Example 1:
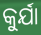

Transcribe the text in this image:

କୁର୍ଯା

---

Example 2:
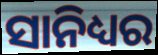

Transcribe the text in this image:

ସାନିଧ୍ୟର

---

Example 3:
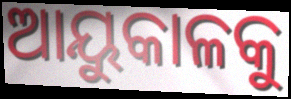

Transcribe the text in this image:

ଆୟୁକାଳକୁ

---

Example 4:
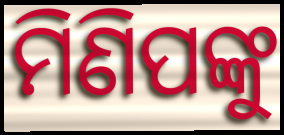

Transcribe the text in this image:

ମିଣିପଙ୍କୁ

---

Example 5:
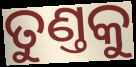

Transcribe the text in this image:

ତୁଣ୍ତକୁ